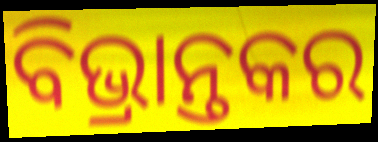
ବିଭ୍ରାନ୍ତକର